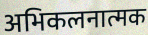
अभिकलनात्मक